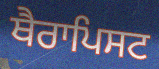
ਥੈਰਾਪਿਸਟ